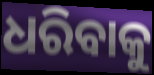
ଧରିବାକୁ